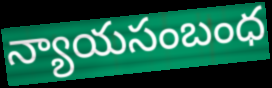
న్యాయసంబంధ